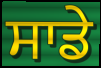
ਸਾਡੇ